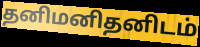
தனிமனிதனிடம்